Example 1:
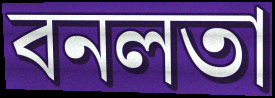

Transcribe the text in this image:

বনলতা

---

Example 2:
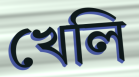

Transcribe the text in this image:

খেলি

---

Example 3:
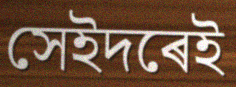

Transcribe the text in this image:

সেইদৰেই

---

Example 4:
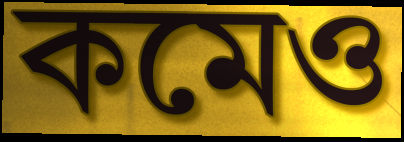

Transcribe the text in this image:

কমেও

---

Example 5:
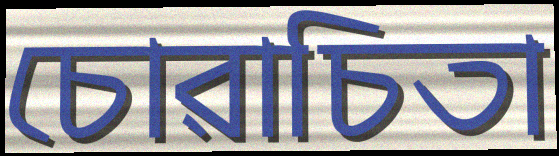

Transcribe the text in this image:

চোৱাচিতা